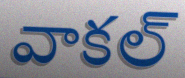
వాకల్